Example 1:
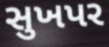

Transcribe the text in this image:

સુખપર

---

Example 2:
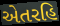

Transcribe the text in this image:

એતરહિ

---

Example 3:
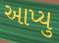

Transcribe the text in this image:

આપ્યુ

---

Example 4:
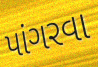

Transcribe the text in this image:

પાંગરવા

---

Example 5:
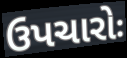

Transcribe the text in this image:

ઉપચારોઃ